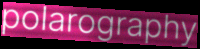
polarography